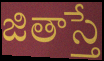
జితాస్తే